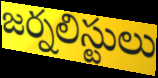
జర్నలిస్టులు